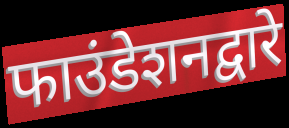
फाउंडेशनद्वारे